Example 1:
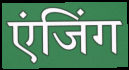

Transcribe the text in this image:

एंजिंग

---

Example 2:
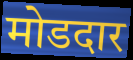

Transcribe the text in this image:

मोडदार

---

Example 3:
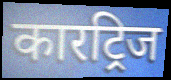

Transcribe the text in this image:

कारट्रिज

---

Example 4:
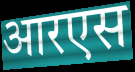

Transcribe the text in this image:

आरएस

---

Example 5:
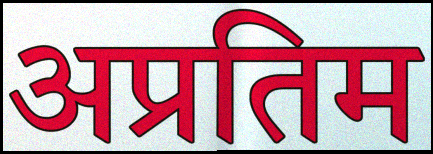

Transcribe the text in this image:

अप्रतिम